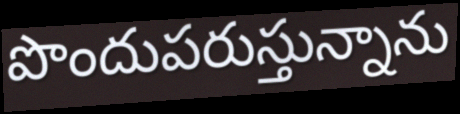
పొందుపరుస్తున్నాను